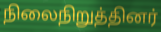
நிலைநிறுத்தினர்